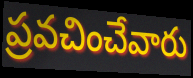
ప్రవచించేవారు